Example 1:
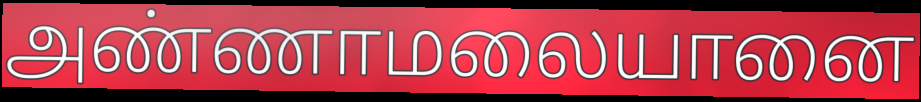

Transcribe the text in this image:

அண்ணாமலையானை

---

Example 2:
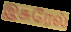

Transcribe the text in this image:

இசுரேல்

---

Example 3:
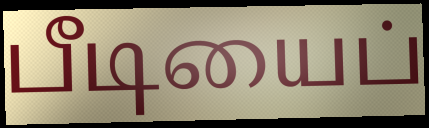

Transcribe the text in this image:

பீடியைப்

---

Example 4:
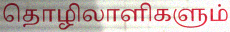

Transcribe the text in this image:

தொழிலாளிகளும்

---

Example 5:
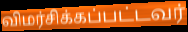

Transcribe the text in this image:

விமர்சிக்கப்பட்டவர்